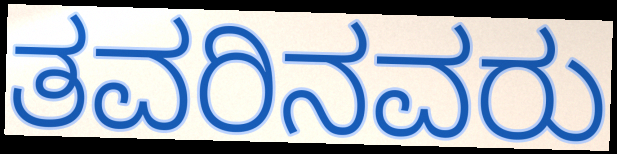
ತವರಿನವರು